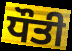
ਧੌਤੀ